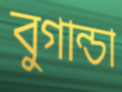
বুগান্ডা